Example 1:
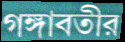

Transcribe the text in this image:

গঙ্গাবতীর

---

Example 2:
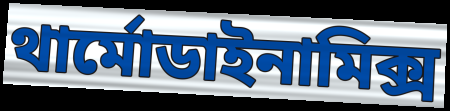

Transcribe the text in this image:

থার্মোডাইনামিক্স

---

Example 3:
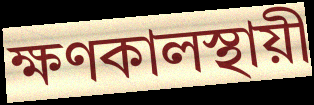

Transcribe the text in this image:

ক্ষণকালস্থায়ী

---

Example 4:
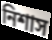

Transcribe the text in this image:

নিশাস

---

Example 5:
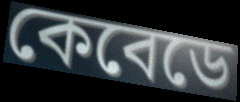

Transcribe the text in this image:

কেবেডে